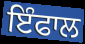
ਇੰਫਾਲ